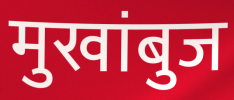
मुखांबुज